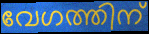
വേഗത്തിന്